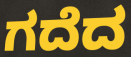
ಗದೆದ